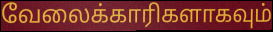
வேலைக்காரிகளாகவும்